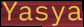
Yasya